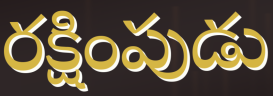
రక్షింపుడు